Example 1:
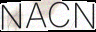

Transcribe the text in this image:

NACN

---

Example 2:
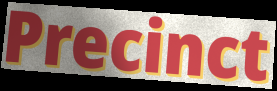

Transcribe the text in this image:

Precinct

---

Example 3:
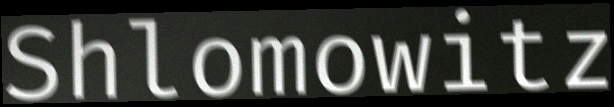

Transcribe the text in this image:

Shlomowitz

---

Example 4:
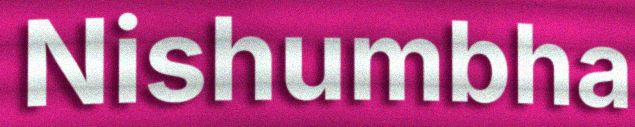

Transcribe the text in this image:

Nishumbha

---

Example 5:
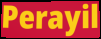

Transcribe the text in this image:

Perayil